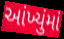
આંખ્યુંમાં